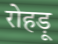
रोहड़ू